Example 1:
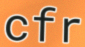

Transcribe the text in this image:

cfr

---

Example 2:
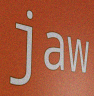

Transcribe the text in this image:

jaw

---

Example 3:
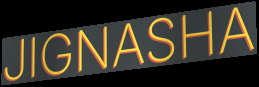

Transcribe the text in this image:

JIGNASHA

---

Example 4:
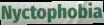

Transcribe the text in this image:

Nyctophobia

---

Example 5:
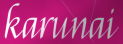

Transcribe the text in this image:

karunai